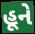
હૂને